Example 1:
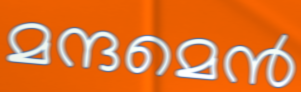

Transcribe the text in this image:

മന്ദമെൻ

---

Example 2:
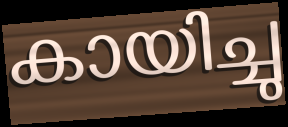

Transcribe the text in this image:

കായിച്ചു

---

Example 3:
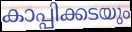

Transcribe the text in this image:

കാപ്പിക്കടയും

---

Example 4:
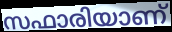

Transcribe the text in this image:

സഫാരിയാണ്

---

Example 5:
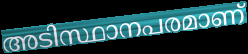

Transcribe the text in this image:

അടിസ്ഥാനപരമാണ്